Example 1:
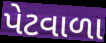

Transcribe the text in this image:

પેટવાળા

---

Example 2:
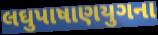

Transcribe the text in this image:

લઘુપાષાણયુગના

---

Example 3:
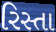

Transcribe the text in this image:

રિસ્તા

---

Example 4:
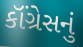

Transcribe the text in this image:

કૉંગ્રેસનું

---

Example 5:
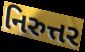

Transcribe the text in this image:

નિરુત્તર